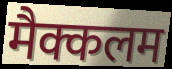
मैक्कलम